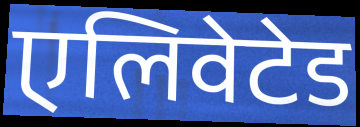
एलिवेटेड